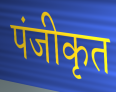
पंजीकृत